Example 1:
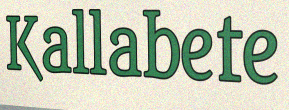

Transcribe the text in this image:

Kallabete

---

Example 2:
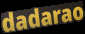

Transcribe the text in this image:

dadarao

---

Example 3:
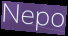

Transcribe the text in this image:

Nepo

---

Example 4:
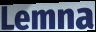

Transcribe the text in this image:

Lemna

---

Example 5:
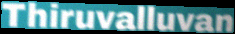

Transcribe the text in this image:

Thiruvalluvan